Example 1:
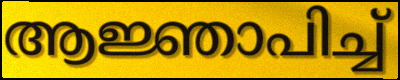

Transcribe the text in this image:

ആജ്ഞാപിച്ച്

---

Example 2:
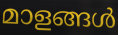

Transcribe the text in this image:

മാളങ്ങൾ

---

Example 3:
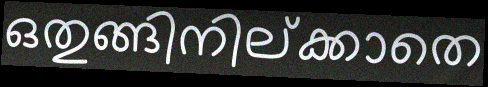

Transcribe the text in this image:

ഒതുങ്ങിനില്ക്കാതെ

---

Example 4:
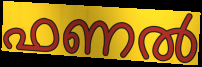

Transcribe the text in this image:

ഫണൽ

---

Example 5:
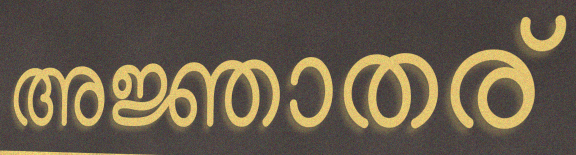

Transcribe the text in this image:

അജ്ഞാതര്